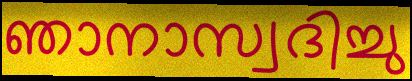
ഞാനാസ്വദിച്ചു